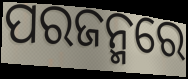
ପରଜନ୍ମରେ